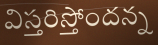
విస్తరిస్తోందన్న